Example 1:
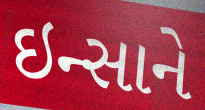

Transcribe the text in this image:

ઇન્સાને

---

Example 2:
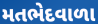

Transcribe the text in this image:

મતભેદવાળા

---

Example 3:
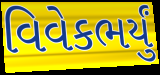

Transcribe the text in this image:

વિવેકભર્યું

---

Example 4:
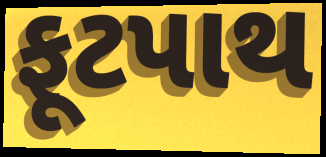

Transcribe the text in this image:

ફૂટપાથ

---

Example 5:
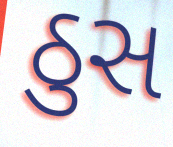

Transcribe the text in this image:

ઠુસ